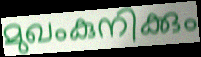
മുഖംകുനിക്കും